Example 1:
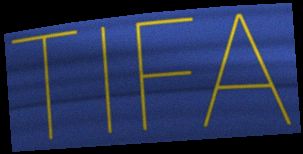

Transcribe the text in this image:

TIFA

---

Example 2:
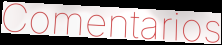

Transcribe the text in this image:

Comentarios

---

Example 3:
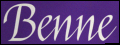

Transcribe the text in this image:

Benne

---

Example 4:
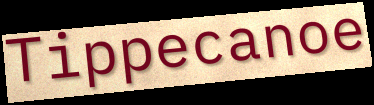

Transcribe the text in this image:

Tippecanoe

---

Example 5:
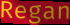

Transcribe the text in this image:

Regan